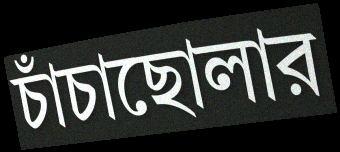
চাঁচাছোলার